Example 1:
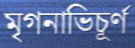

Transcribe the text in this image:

মৃগনাভিচূর্ণ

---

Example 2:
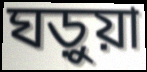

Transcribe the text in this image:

ঘড়ুয়া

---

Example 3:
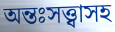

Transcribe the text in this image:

অন্তঃসত্ত্বাসহ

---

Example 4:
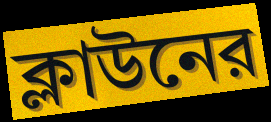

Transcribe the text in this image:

ক্লাউনের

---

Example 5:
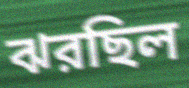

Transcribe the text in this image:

ঝরছিল